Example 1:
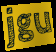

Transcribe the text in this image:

jgu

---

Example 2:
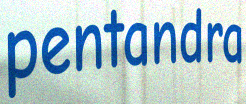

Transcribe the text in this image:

pentandra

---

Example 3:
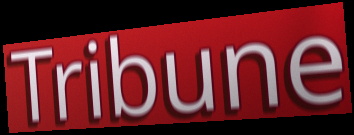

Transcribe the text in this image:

Tribune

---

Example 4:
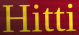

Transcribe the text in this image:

Hitti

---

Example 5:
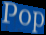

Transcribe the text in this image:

Pop